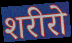
शरीरो